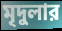
মৃদুলার